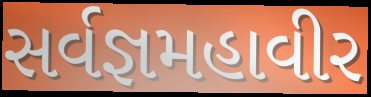
સર્વજ્ઞમહાવીર